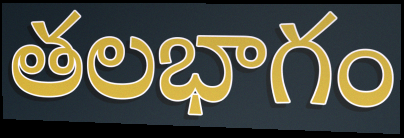
తలభాగం